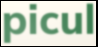
picul